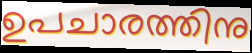
ഉപചാരത്തിനു